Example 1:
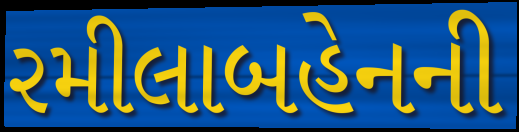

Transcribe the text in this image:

રમીલાબહેનની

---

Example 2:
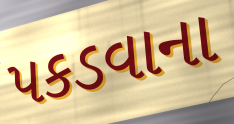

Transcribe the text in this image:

પકડવાના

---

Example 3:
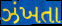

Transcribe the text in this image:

ઝંખતા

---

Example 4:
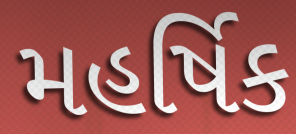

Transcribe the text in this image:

મહર્ષિક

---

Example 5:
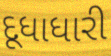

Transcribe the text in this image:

દૂધાધારી